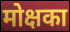
मोक्षका